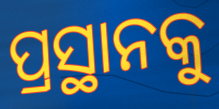
ପ୍ରସ୍ଥାନକୁ